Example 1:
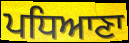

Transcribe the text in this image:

ਪਧਿਆਣਾ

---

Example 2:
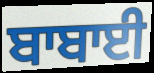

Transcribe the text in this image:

ਬਾਬਾਈ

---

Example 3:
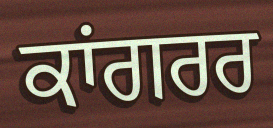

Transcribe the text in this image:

ਕਾਂਗਰਰ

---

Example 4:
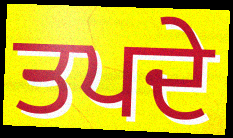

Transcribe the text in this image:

ਤਪਦੇ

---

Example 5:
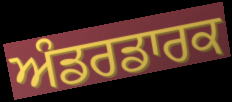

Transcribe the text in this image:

ਅੰਡਰਡਾਰਕ